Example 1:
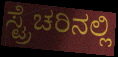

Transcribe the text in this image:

ಸ್ಟ್ರೆಚರಿನಲ್ಲಿ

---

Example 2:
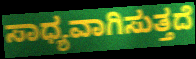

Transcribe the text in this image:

ಸಾಧ್ಯವಾಗಿಸುತ್ತದೆ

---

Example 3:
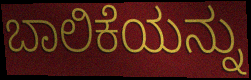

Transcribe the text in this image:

ಬಾಲಿಕೆಯನ್ನು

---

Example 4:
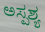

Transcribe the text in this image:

ಅಸ್ಪಶ್ಯ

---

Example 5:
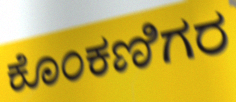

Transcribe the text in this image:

ಕೊಂಕಣಿಗರ